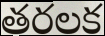
తరలక